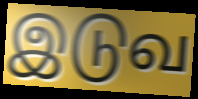
இடுவ